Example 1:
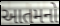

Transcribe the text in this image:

આતમનો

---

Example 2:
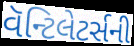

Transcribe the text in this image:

વૅન્ટિલેટર્સની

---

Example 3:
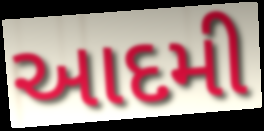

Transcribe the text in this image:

આદમી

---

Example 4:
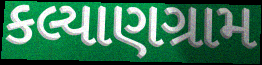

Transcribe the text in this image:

કલ્યાણગ્રામ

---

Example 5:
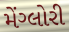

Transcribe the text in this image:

મેંગ્લોરી